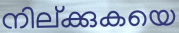
നില്ക്കുകയെ